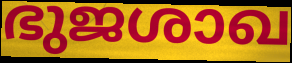
ഭുജശാഖ